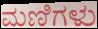
ಮಣಿಗಳು